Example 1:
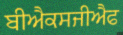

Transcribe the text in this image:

ਬੀਐਕਸਜੀਐਫ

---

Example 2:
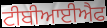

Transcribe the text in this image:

ਟੀਬੀਆਈਐਫ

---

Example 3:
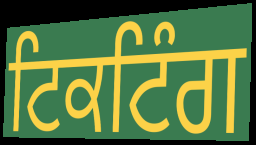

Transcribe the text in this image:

ਟਿਕਟਿੰਗ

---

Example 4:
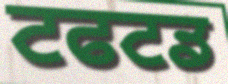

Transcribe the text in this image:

ਟਫਟਡ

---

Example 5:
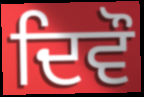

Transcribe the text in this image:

ਦਿਵੌ